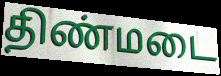
திண்மடை